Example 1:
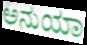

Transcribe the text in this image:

ಅನುಯಾ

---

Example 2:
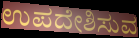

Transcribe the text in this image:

ಉಪದೇಶಿಸುವ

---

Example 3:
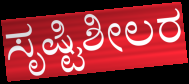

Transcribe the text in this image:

ಸೃಷ್ಟಿಶೀಲರ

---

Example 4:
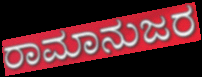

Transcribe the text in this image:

ರಾಮಾನುಜರ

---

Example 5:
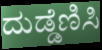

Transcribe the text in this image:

ದುಡ್ಡೆಣಿಸಿ